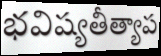
భవిష్యతీత్యాప